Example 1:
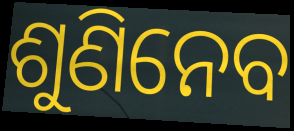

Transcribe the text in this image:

ଶୁଣିନେବ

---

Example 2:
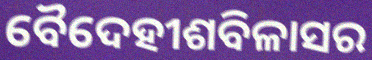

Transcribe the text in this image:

ବୈଦେହୀଶବିଳାସର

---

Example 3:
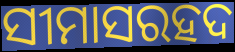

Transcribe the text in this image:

ସୀମାସରହଦ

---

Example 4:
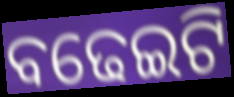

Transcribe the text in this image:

ବଢେଇଟି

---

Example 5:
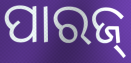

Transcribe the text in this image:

ପାରଜ୍